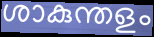
ശാകുന്തളം